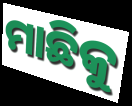
ମାଛିକୁ